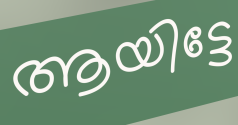
ആയിട്ടേ